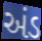
અંડ